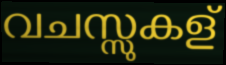
വചസ്സുകള്